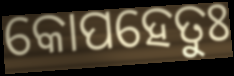
କୋପହେତୁଃ